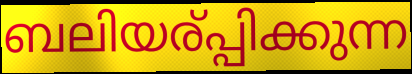
ബലിയര്പ്പിക്കുന്ന